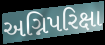
અગ્નિપરિક્ષા